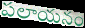
పలాయనం